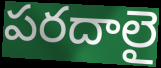
పరదాలై